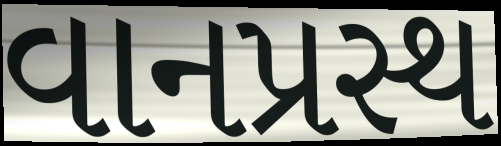
વાનપ્રસ્થ